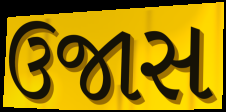
ઉજાસ